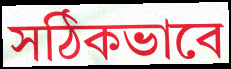
সঠিকভাবে